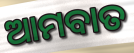
ଆମବାତ